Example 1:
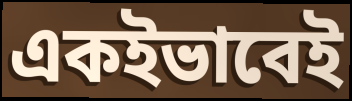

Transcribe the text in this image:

একইভাবেই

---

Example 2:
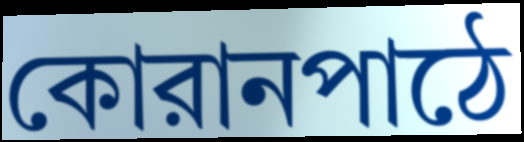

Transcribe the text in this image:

কোরানপাঠে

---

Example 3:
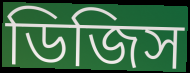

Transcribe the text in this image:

ডিজিস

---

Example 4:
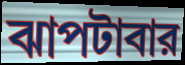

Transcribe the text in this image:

ঝাপটাবার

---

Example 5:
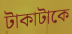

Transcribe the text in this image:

টাকাটাকে